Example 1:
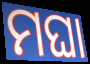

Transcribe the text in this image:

ମଘା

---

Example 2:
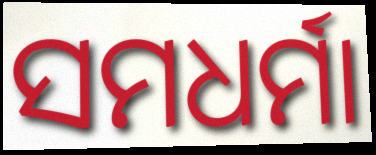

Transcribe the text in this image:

ସମଧର୍ମା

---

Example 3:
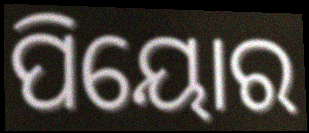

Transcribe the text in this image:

ପିୟୋର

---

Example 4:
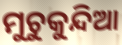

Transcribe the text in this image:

ମୁଚୁକୁନ୍ଦିଆ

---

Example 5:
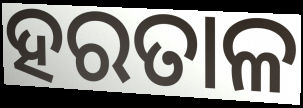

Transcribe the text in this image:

ହରତାଳ